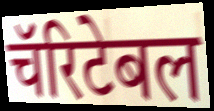
चॅरिटेबल